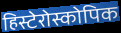
हिस्टेरोस्कोपिक